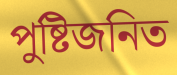
পুষ্টিজনিত